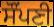
ਸੌਂਪਣੀ